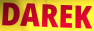
DAREK